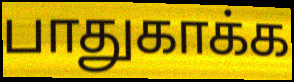
பாதுகாக்க